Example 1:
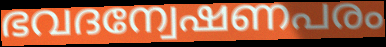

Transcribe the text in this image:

ഭവദന്വേഷണപരം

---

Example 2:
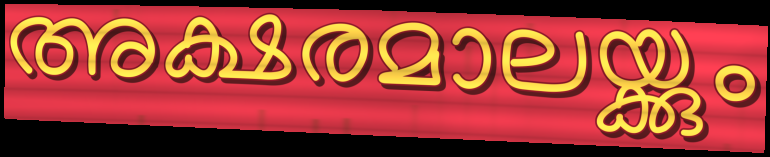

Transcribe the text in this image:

അക്ഷരമാലയ്ക്കും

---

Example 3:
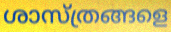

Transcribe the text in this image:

ശാസ്ത്രങ്ങളെ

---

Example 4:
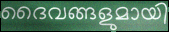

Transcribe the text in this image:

ദൈവങ്ങളുമായി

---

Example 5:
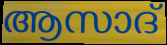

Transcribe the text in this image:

ആസാദ്